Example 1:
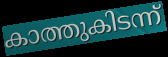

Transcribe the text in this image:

കാത്തുകിടന്ന്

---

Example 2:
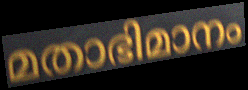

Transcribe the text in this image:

മതാഭിമാനം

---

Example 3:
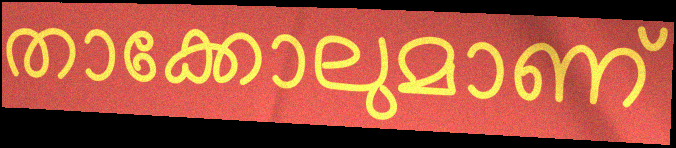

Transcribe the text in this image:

താക്കോലുമാണ്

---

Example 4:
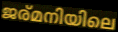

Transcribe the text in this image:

ജര്മനിയിലെ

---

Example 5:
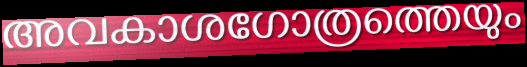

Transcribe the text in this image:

അവകാശഗോത്രത്തെയും